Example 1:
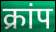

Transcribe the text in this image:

क्रांप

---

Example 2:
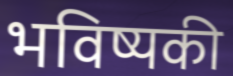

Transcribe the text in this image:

भविष्यकी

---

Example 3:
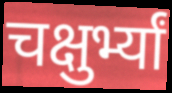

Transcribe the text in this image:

चक्षुर्भ्यां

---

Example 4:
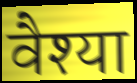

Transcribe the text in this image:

वैश्या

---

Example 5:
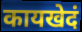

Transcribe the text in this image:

कायखेदं